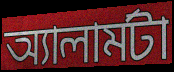
অ্যালার্মটা